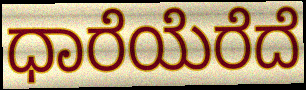
ಧಾರೆಯೆರೆದೆ